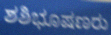
ಶಶಿಭೂಷಣರು